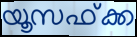
യൂസഫ്ക്ക